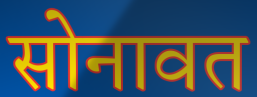
सोनावत